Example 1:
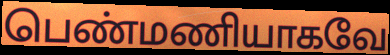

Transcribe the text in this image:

பெண்மணியாகவே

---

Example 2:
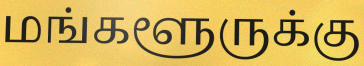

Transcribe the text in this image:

மங்களூருக்கு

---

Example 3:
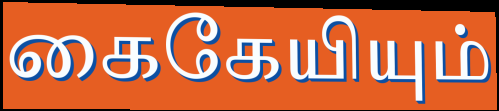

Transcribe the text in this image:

கைகேயியும்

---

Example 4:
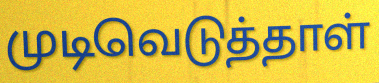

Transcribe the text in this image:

முடிவெடுத்தாள்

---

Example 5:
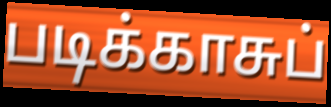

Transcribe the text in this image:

படிக்காசுப்